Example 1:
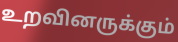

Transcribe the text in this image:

உறவினருக்கும்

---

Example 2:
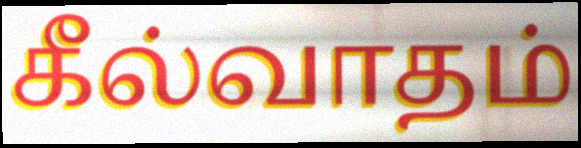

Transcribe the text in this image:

கீல்வாதம்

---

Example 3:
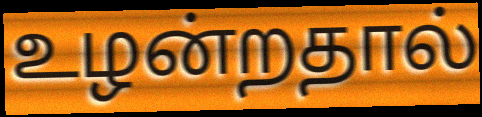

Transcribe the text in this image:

உழன்றதால்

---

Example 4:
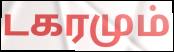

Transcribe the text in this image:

டகரமும்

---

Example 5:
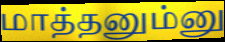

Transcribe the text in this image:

மாத்தனும்னு